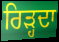
ਰਿੜ੍ਹਦਾ